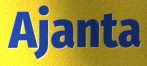
Ajanta